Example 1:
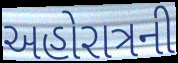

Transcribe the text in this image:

અહોરાત્રની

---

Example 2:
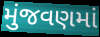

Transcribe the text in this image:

મુંજવણમાં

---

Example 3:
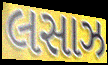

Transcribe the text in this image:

લસાઝ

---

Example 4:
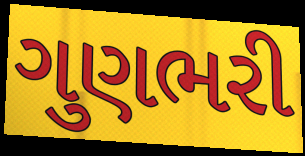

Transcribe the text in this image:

ગુણભરી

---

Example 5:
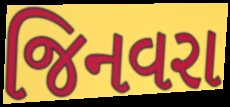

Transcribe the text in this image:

જિનવરા